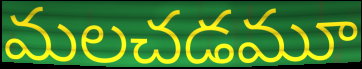
మలచడమూ